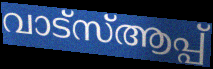
വാട്സ്ആപ്പ്